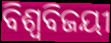
ବିଶ୍ବବିଜୟୀ